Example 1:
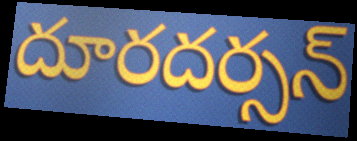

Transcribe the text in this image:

దూరదర్సన్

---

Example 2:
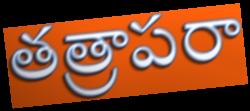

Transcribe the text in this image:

తత్రాపరా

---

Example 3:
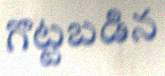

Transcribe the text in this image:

గొట్టబడిన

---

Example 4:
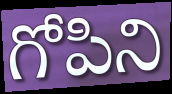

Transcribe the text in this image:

గోపిని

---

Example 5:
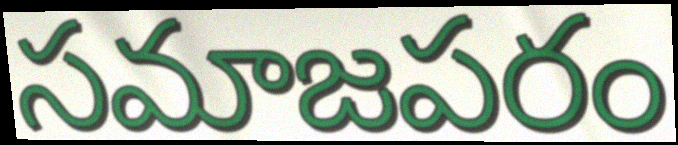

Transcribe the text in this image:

సమాజపరం